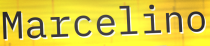
Marcelino